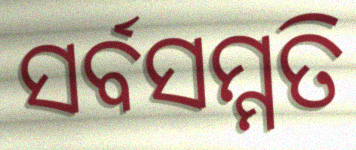
ସର୍ବସମ୍ମତି